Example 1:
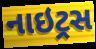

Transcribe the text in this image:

નાઇટ્રસ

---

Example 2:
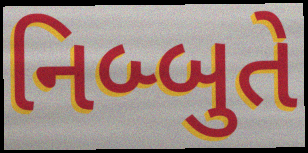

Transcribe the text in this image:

નિબ્બુતે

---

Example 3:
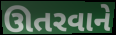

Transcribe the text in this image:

ઊતરવાને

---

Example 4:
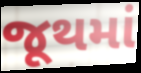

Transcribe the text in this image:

જૂથમાં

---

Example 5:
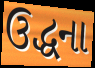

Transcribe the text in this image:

ઉદ્ધના